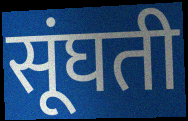
सूंघती